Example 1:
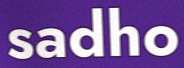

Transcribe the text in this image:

sadho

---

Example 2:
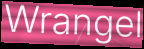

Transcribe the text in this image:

Wrangel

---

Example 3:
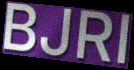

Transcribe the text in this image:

BJRI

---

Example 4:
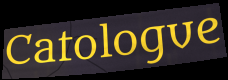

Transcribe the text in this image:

Catologue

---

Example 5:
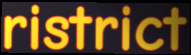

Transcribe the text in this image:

ristrict